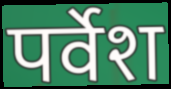
पर्वेश